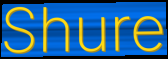
Shure